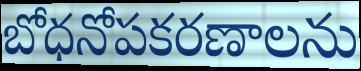
బోధనోపకరణాలను